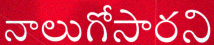
నాలుగోసారని